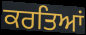
ਕਰਤਿਆਂ